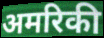
अमरिकी